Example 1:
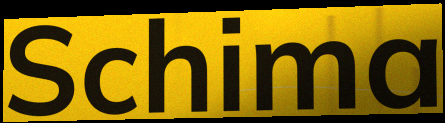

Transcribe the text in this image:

Schima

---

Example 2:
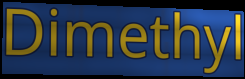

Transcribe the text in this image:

Dimethyl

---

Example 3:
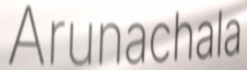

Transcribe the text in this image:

Arunachala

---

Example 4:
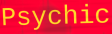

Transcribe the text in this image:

Psychic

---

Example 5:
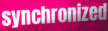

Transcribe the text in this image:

synchronized